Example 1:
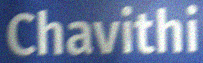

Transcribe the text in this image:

Chavithi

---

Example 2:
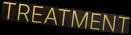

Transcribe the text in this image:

TREATMENT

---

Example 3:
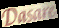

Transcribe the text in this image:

Dasare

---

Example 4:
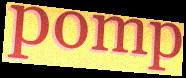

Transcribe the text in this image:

pomp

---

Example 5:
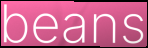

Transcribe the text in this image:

beans